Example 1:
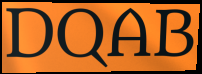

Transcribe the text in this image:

DQAB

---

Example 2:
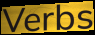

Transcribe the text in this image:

Verbs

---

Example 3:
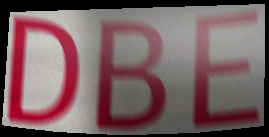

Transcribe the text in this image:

DBE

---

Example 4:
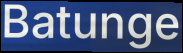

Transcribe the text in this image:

Batunge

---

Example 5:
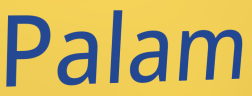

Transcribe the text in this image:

Palam